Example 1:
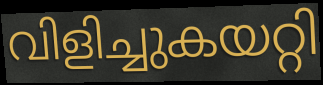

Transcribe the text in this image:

വിളിച്ചുകയറ്റി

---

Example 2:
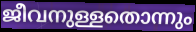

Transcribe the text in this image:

ജീവനുള്ളതൊന്നും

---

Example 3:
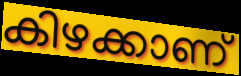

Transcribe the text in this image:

കിഴക്കാണ്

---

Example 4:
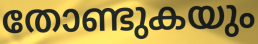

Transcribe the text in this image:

തോണ്ടുകയും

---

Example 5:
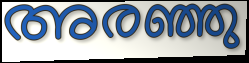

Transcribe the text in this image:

അരഞ്ഞു